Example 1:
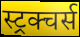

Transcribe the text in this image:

स्ट्रक्चर्स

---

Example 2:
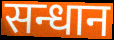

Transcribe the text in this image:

सन्धान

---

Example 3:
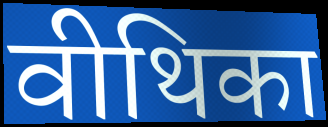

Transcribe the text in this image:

वीथिका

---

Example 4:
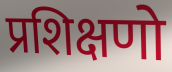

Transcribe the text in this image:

प्रशिक्षणो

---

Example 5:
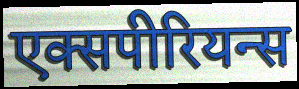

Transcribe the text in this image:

एक्सपीरियन्स